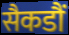
सैकडौं